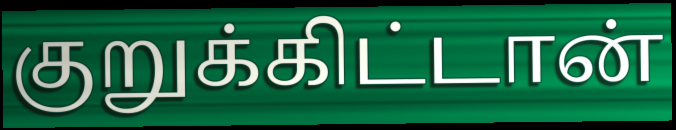
குறுக்கிட்டான்